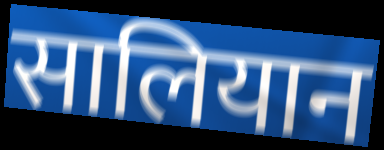
सालियान